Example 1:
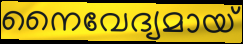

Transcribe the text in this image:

നൈവേദ്യമായ്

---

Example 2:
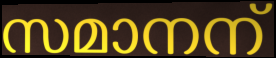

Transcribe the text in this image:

സമാനന്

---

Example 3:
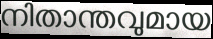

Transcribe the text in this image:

നിതാന്തവുമായ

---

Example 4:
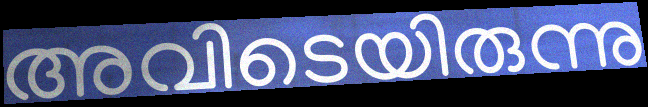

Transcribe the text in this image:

അവിടെയിരുന്നു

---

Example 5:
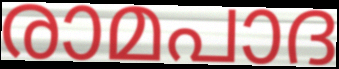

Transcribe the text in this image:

രാമപാദ